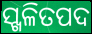
ସ୍ଖଳିତପଦ